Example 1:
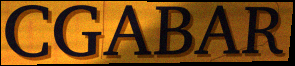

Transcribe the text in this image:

CGABAR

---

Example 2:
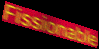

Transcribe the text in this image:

Fissionable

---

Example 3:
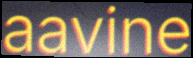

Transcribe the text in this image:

aavine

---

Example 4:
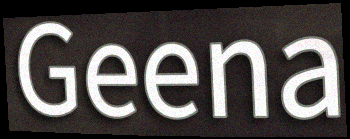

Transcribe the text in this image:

Geena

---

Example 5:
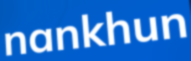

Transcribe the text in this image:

nankhun